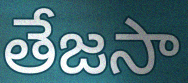
తేజసా